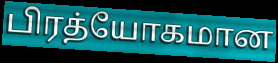
பிரத்யோகமான